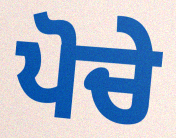
ਪੋਚੇ